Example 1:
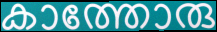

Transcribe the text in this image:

കാത്തോരു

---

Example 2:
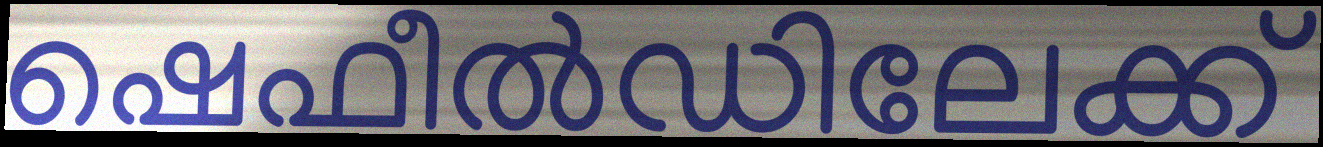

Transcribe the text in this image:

ഷെഫീൽഡിലേക്ക്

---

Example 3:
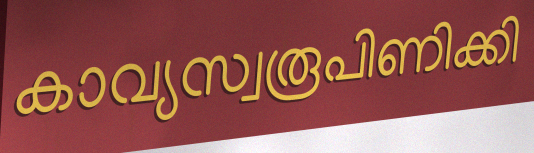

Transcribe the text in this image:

കാവ്യസ്വരൂപിണിക്കി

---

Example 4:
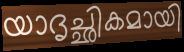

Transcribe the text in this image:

യാദൃച്ഛികമായി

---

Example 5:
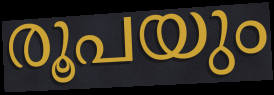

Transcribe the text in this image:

രൂപയും